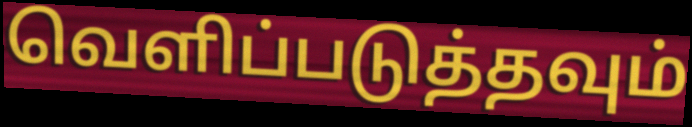
வெளிப்படுத்தவும்